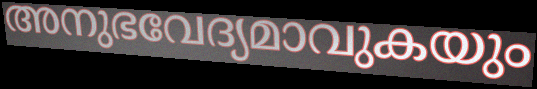
അനുഭവേദ്യമാവുകയും